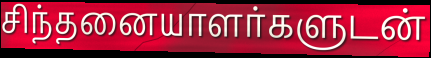
சிந்தனையாளர்களுடன்